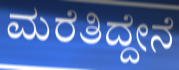
ಮರೆತಿದ್ದೇನೆ